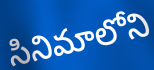
సినిమాలోని